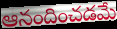
ఆనందించడమే